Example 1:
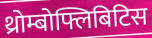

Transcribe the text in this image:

थ्रोम्बोफ्लिबिटिस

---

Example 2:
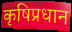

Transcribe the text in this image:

कृषिप्रधान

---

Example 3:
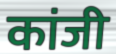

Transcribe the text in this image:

कांजी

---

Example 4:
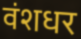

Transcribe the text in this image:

वंशधर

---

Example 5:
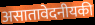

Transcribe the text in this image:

असातावेदनीयकी